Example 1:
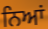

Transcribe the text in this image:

ਨਿਆਂ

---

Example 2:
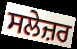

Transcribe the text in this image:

ਸਲੇਜ਼ਰ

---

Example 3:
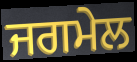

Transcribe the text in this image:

ਜਗਮੇਲ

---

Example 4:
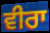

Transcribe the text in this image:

ਵੀਰਾ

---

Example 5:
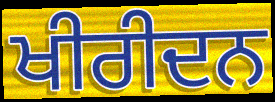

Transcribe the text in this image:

ਖੀਰੀਦਨ